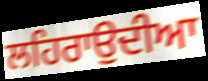
ਲਹਿਰਾਉਦੀਆ